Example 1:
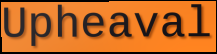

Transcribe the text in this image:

Upheaval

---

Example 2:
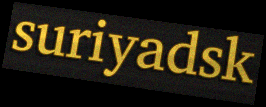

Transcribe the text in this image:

suriyadsk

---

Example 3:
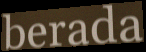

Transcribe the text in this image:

berada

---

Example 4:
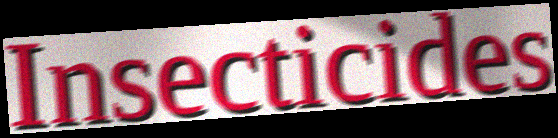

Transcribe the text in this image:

Insecticides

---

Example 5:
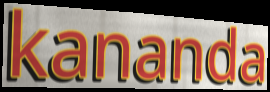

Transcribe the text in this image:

kananda